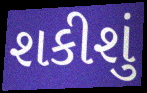
શકીશું